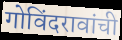
गोविंदरावांची